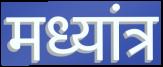
मध्यांत्र